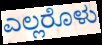
ಎಲ್ಲರೊಳು